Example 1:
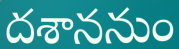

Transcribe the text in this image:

దశాననుం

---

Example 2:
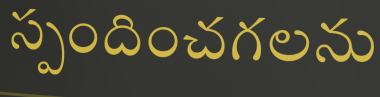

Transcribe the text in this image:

స్పందించగలను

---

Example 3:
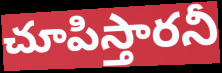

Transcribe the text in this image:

చూపిస్తారనీ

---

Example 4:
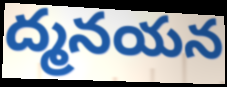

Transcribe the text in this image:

ద్మనయన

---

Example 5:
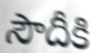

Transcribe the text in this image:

సౌదీకి